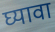
घ्यावा